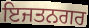
ਇਜਤਨਗਰ